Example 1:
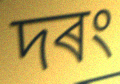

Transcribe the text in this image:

দৰং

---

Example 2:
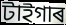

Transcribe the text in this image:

টাইগাৰ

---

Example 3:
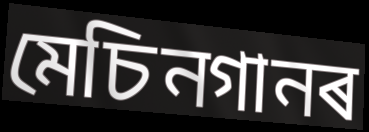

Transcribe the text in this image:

মেচিনগানৰ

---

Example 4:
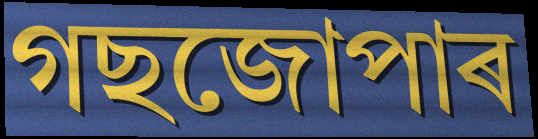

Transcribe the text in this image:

গছজোপাৰ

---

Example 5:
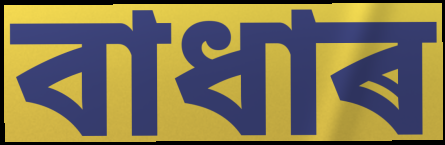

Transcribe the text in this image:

বাধাৰ